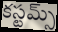
కస్టమ్స్